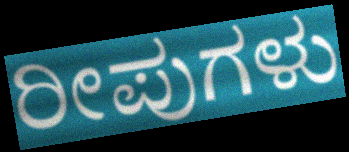
ರೀಪುಗಳು